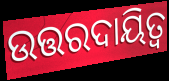
ଉତ୍ତରଦାୟିତ୍ବ